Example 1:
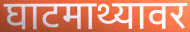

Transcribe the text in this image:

घाटमाथ्यावर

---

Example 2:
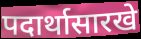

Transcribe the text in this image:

पदार्थासारखे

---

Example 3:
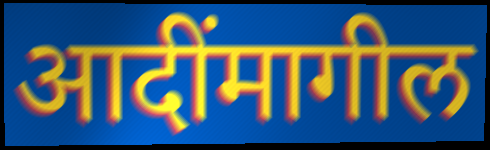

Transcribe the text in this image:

आदींमागील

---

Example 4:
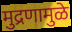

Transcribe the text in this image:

मुद्रणामुळे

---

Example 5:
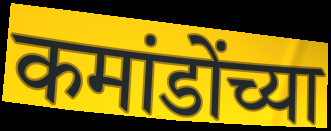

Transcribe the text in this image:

कमांडोंच्या